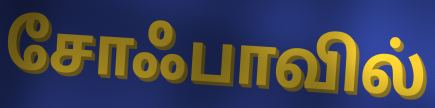
சோஃபாவில்